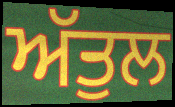
ਅੱਤੁਲ